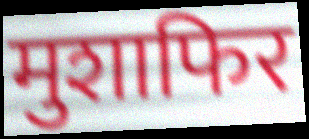
मुशाफिर